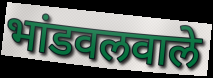
भांडवलवाले